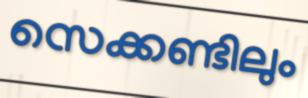
സെക്കണ്ടിലും